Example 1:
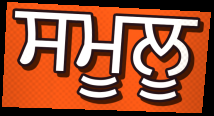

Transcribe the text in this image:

ਸਮੂਲੂ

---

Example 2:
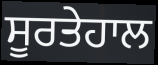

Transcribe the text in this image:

ਸੂਰਤੇਹਾਲ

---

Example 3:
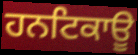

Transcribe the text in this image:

ਹਨਟਿਕਾਊ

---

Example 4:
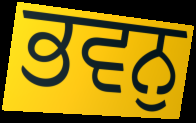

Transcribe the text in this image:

ਭਵਨੁ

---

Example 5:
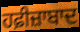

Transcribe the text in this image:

ਹਫ਼ੀਜ਼ਾਬਾਦ